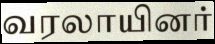
வரலாயினர்